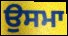
ਉਸਮਾ